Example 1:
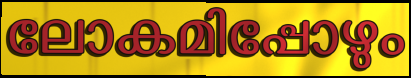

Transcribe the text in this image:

ലോകമിപ്പോഴും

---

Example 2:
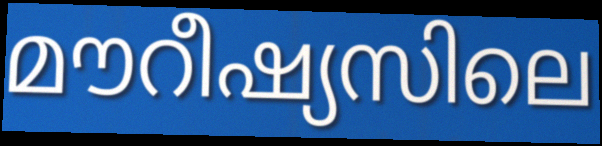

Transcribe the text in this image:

മൗറീഷ്യസിലെ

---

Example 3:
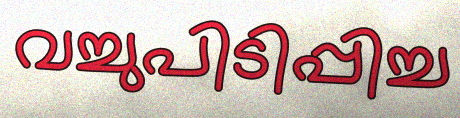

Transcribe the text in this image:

വച്ചുപിടിപ്പിച്ച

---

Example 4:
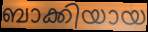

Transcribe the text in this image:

ബാക്കിയായ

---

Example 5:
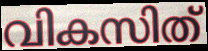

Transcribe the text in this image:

വികസിത്